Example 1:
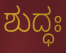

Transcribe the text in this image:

ಶುದ್ಧಃ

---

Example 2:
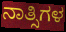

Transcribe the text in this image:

ನಾತ್ಸಿಗಳ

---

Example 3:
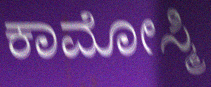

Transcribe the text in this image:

ಕಾಮೋಸ್ಮಿ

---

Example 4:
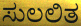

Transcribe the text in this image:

ಸುಲಲಿತ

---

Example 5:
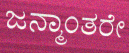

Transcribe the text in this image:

ಜನ್ಮಾಂತರೇ